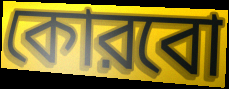
কোরবো